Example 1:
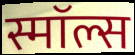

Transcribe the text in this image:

स्मॉल्स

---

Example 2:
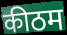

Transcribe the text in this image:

कीठम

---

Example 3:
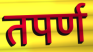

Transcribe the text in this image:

तपर्ण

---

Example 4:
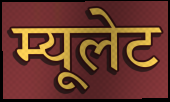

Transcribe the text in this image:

म्यूलेट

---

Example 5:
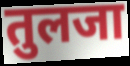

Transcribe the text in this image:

तुलजा